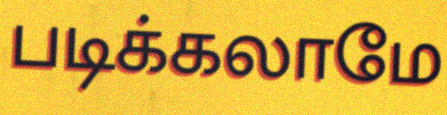
படிக்கலாமே